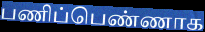
பணிப்பெண்ணாக